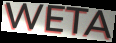
WETA